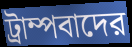
ট্রাম্পবাদের